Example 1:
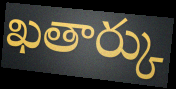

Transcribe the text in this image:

ఖతార్కు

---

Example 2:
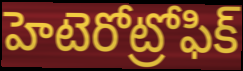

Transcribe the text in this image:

హెటెరోట్రోఫిక్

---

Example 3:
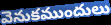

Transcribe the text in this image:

వెనుకముందులు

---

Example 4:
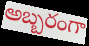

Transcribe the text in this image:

అబ్బరంగా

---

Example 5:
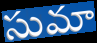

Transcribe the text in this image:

సుమా